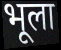
भूला